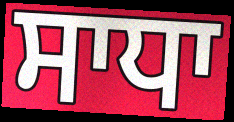
ਸਾਧਾ